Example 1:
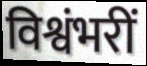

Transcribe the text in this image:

विश्वंभरीं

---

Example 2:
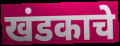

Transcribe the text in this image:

खंडकाचे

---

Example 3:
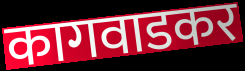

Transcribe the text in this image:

कागवाडकर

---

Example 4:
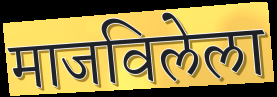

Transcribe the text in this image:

माजविलेला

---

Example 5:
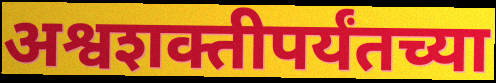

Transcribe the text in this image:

अश्वशक्तीपर्यंतच्या